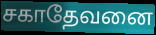
சகாதேவனை